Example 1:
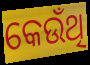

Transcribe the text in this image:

କେଉଁଥି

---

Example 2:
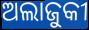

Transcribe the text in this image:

ଅଲାଜୁକୀ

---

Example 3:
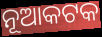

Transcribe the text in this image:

ନୂଆକଟକ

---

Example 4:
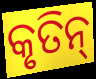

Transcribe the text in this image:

କୃତିନ୍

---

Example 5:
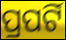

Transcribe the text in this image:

ପ୍ରପର୍ଟି